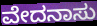
ವೇದನಾಸು